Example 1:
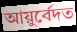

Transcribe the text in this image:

আয়ুৰ্বেদত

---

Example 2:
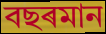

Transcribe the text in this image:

বছৰমান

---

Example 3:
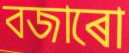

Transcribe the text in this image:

বজাৰো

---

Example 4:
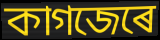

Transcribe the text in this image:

কাগজেৰে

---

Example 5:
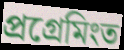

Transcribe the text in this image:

প্ৰগ্ৰেমিংত